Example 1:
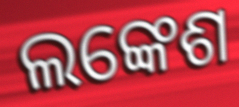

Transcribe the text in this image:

ଲଙ୍କେଶ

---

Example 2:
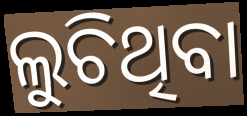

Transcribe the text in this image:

ଲୁଚିଥିବା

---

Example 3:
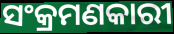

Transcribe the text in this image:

ସଂକ୍ରମଣକାରୀ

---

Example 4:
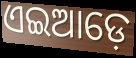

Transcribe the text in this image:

ଏଇଆଡ଼େ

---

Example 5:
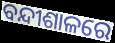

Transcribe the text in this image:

ବନ୍ଦୀଶାଳରେ